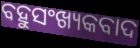
ବହୁସଂଖ୍ୟକବାଦ